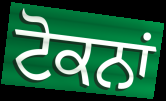
ਟੋਕਨਾਂ